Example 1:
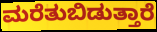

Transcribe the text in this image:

ಮರೆತುಬಿಡುತ್ತಾರೆ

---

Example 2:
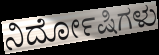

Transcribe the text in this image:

ನಿರ್ದೋಷಿಗಳು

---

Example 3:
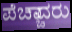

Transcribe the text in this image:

ಪೆಚ್ಚಾದರು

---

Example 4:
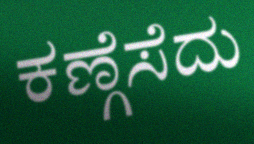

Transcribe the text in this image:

ಕಣ್ಗೆಸೆದು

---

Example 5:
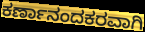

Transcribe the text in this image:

ಕರ್ಣಾನಂದಕರವಾಗಿ